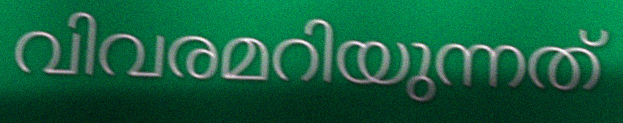
വിവരമറിയുന്നത്